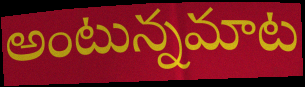
అంటున్నమాట